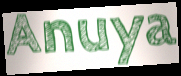
Anuya